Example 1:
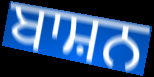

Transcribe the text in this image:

ਬਾਸ਼ਨ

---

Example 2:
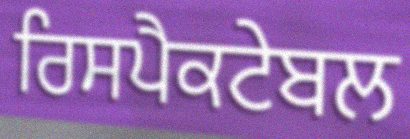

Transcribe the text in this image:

ਰਿਸਪੈਕਟੇਬਲ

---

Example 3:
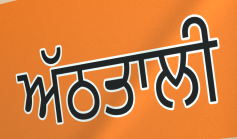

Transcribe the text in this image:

ਅੱਠਤਾਲੀ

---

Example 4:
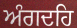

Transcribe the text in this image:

ਅੰਗਦਹਿ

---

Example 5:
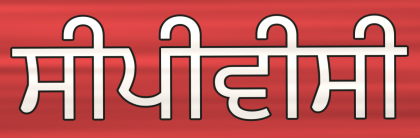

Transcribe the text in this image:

ਸੀਪੀਵੀਸੀ